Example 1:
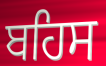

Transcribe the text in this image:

ਬਹਿਸ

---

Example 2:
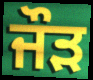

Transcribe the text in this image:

ਜੌੜ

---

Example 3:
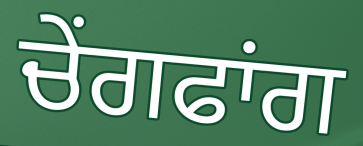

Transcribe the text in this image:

ਚੇਂਗਫਾਂਗ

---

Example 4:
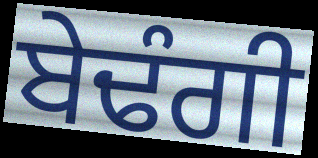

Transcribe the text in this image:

ਬੇਢੰਗੀ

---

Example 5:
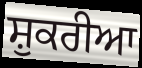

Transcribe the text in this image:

ਸ਼ੁਕਰੀਆ